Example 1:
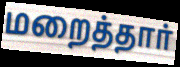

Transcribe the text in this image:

மறைத்தார்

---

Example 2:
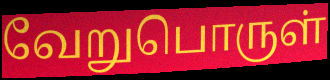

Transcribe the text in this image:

வேறுபொருள்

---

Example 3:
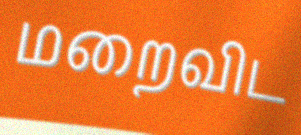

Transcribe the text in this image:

மறைவிட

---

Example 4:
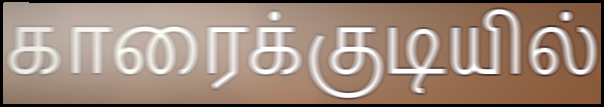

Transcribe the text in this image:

காரைக்குடியில்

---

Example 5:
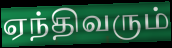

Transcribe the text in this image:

ஏந்திவரும்